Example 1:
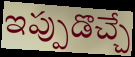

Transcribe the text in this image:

ఇప్పుడొచ్చే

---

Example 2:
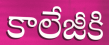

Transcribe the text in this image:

కాలేజీకి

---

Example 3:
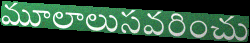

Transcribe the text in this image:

మూలాలుసవరించు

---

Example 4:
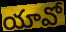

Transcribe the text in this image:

యావో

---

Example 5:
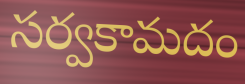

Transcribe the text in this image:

సర్వకామదం